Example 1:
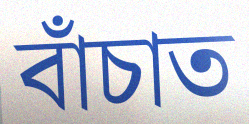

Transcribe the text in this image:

বাঁচাত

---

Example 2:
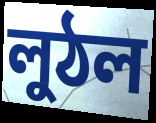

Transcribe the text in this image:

লুঠল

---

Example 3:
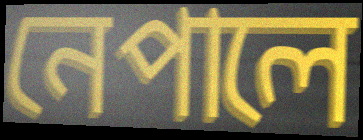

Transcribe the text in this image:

নেপালে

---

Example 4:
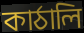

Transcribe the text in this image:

কাঠালি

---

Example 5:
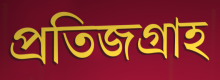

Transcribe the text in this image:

প্রতিজগ্রাহ